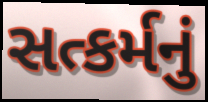
સત્કર્મનું